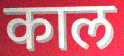
काल